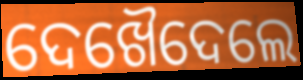
ଦେଖୈଦେଲେ